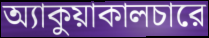
অ্যাকুয়াকালচারে